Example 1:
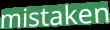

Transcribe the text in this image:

mistaken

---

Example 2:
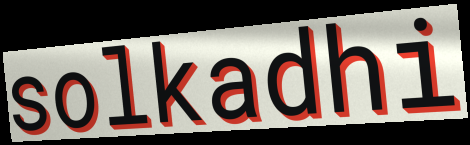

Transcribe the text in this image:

solkadhi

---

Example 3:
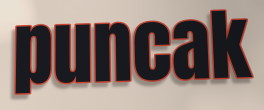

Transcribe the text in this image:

puncak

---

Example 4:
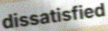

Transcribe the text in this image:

dissatisfied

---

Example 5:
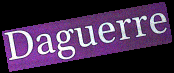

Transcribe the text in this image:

Daguerre